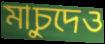
মাচুদেও